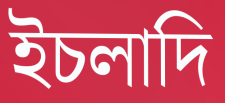
ইচলাদি